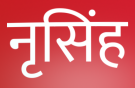
नृसिंह